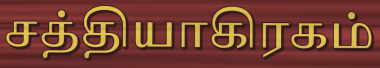
சத்தியாகிரகம்